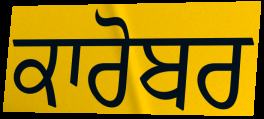
ਕਾਰੋਬਰ